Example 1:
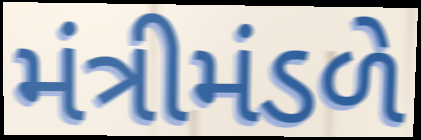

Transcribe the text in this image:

મંત્રીમંડળે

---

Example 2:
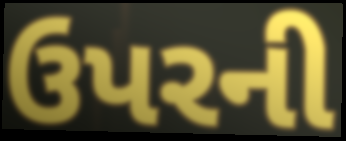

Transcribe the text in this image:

ઉપરની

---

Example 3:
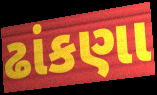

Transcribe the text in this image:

ઢાંકણા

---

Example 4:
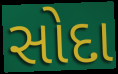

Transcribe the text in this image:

સોદા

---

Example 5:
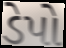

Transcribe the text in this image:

ડેપો